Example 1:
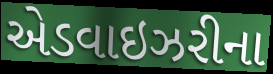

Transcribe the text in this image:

એડવાઇઝરીના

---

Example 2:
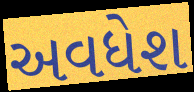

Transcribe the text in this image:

અવધેશ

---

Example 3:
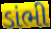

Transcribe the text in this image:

ડાંભી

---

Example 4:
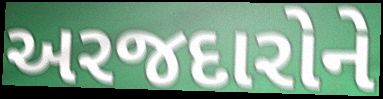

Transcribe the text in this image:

અરજદારોને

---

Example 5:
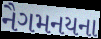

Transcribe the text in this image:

નૈગમનયના